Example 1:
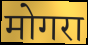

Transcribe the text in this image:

मोगरा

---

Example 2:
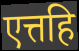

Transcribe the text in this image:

एत्तहि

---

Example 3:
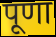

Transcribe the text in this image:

पूणा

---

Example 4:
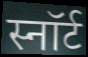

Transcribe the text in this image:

स्नॉर्ट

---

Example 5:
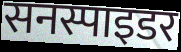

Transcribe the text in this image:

सनस्पाइडर